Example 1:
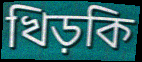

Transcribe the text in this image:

খিড়কি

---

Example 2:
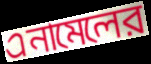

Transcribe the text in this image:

এনামেলের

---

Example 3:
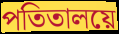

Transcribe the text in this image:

পতিতালয়ে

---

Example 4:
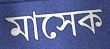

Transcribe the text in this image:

মাসেক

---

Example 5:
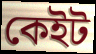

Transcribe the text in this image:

কেইট